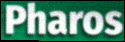
Pharos